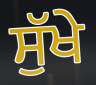
ਸੁੱਖੇ